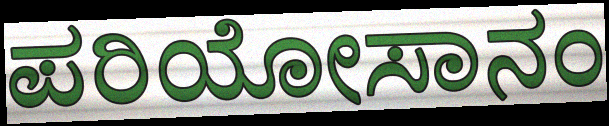
ಪರಿಯೋಸಾನಂ